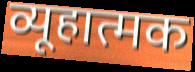
व्यूहात्मक